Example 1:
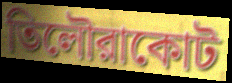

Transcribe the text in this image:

তিলৌরাকোট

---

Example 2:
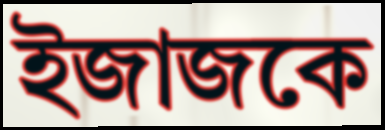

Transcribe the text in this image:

ইজাজকে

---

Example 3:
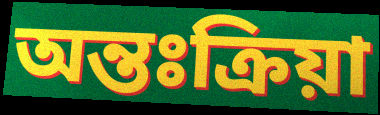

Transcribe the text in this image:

অন্তঃক্রিয়া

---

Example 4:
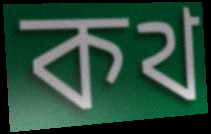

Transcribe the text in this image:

কথ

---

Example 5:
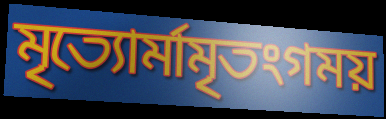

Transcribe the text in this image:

মৃত্যোর্মামৃতংগময়